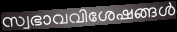
സ്വഭാവവിശേഷങ്ങൾ